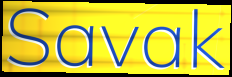
Savak